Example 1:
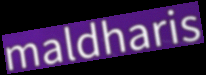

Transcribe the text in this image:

maldharis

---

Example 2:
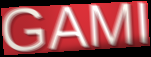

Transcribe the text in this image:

GAMI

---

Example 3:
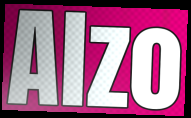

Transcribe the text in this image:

Alzo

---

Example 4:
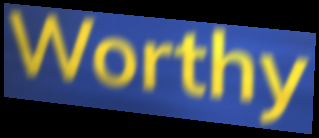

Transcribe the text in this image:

Worthy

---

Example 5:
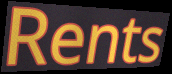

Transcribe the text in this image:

Rents